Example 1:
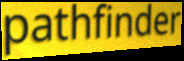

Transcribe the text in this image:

pathfinder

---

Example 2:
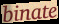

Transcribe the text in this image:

binate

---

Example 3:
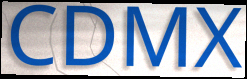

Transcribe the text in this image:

CDMX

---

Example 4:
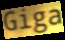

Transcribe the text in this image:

Giga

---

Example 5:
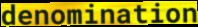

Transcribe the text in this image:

denomination